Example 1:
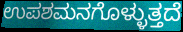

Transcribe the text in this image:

ಉಪಶಮನಗೊಳ್ಳುತ್ತದೆ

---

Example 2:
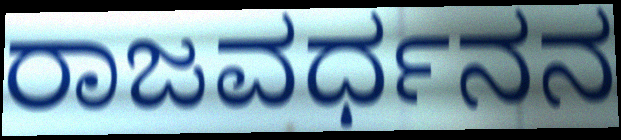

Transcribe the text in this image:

ರಾಜವರ್ಧನನ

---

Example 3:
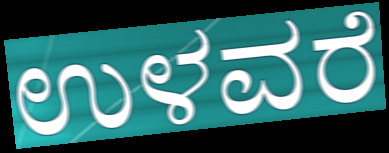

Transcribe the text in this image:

ಉಳವರೆ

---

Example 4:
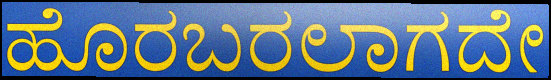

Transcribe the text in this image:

ಹೊರಬರಲಾಗದೇ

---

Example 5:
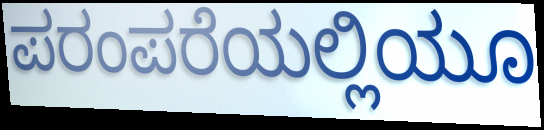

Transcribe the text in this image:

ಪರಂಪರೆಯಲ್ಲಿಯೂ